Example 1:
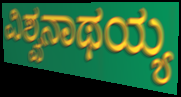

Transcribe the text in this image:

ವಿಶ್ವನಾಥಯ್ಯ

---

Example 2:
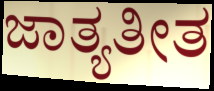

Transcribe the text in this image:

ಜಾತ್ಯತೀತ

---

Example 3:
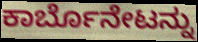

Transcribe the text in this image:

ಕಾರ್ಬೊನೇಟನ್ನು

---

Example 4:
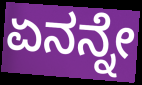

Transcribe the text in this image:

ಏನನ್ನೇ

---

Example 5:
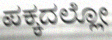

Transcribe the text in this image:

ಪಕ್ಕದಲ್ಲೋ